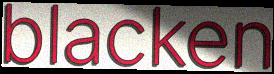
blacken